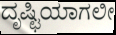
ದೃಷ್ಟಿಯಾಗಲೀ